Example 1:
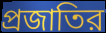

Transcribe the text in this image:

প্রজাতির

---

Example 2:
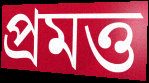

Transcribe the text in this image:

প্রমত্ত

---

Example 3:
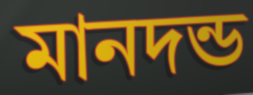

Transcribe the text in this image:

মানদন্ড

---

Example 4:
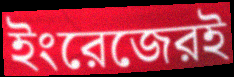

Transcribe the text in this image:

ইংরেজেরই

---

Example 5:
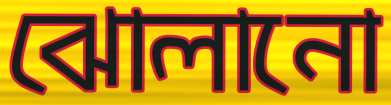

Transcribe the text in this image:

ঝোলানো